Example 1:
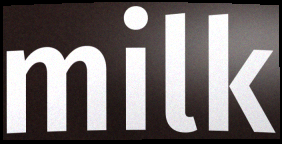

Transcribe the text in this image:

milk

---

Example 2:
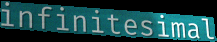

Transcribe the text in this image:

infinitesimal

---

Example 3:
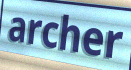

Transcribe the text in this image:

archer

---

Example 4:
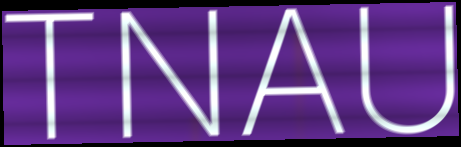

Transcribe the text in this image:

TNAU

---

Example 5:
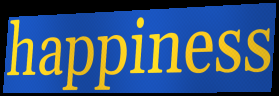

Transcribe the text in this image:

happiness